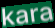
kara